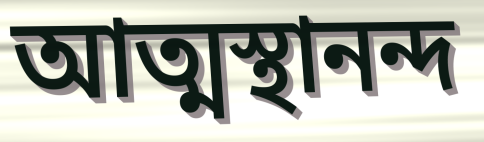
আত্মস্থানন্দ